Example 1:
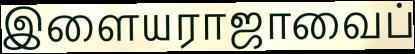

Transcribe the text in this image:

இளையராஜாவைப்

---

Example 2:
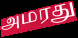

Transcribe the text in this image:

அமரது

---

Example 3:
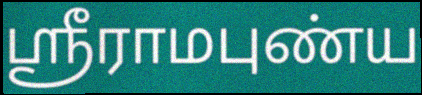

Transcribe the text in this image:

ஸ்ரீராமபுண்ய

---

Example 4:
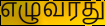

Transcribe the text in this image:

எழுவரது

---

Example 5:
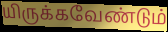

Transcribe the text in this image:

யிருக்கவேண்டும்